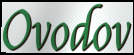
Ovodov